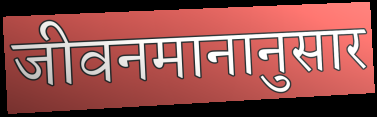
जीवनमानानुसार